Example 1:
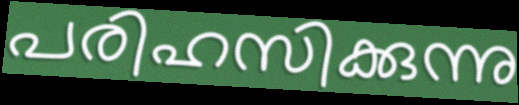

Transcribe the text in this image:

പരിഹസിക്കുന്നു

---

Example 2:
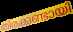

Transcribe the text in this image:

തിരക്കുണ്ടായി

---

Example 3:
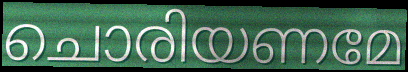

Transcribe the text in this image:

ചൊരിയണമേ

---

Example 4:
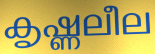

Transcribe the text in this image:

കൃഷ്ണലീല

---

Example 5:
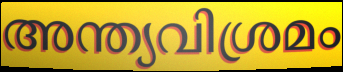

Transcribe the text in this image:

അന്ത്യവിശ്രമം